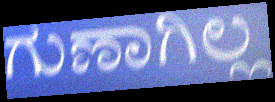
ಗುಣಾಗಿಲ್ಲ